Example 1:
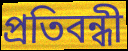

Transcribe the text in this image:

প্রতিবন্ধী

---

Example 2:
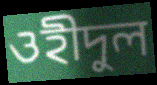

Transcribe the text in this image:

ওহীদুল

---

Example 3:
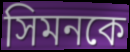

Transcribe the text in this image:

সিমনকে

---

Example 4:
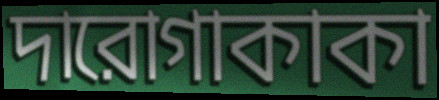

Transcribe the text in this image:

দারোগাকাকা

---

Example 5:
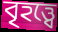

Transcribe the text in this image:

বৃহত্ত্বে